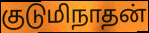
குடுமிநாதன்